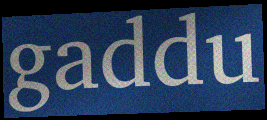
gaddu